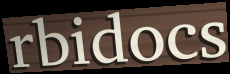
rbidocs